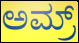
ಅಮ್ರ್